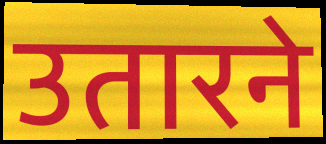
उतारने